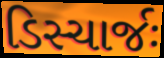
ડિસ્ચાર્જઃ